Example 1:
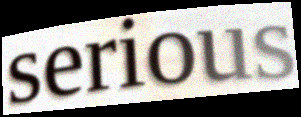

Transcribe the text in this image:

serious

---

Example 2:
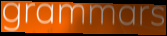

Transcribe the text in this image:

grammars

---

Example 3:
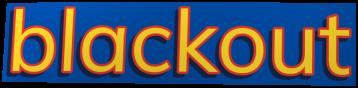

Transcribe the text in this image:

blackout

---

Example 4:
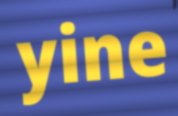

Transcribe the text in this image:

yine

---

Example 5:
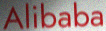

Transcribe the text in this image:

Alibaba